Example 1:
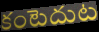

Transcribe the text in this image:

కంటెదుట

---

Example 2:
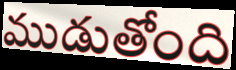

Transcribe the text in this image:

ముడుతోంది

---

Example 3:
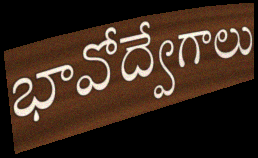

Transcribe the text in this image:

భావోద్వేగాలు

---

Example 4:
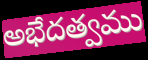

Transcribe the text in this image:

అభేదత్వము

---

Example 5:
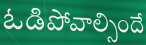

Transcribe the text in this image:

ఓడిపోవాల్సిందే